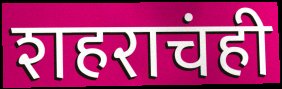
शहराचंही